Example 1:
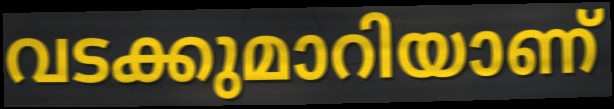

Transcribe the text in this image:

വടക്കുമാറിയാണ്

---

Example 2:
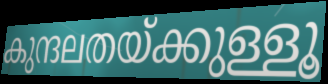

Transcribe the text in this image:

കുന്ദലതയ്ക്കുള്ളൂ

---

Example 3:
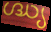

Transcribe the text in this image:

ഗ്ദ്ധ്യ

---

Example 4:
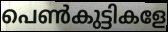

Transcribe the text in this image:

പെൺകുട്ടികളേ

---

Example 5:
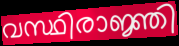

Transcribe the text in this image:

വസ്ഥിരാജ്ഞി